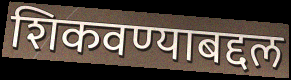
शिकवण्याबद्दल